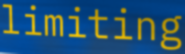
limiting